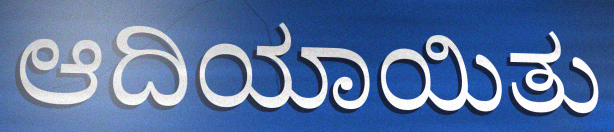
ಆದಿಯಾಯಿತು